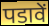
पडावें